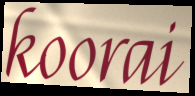
koorai